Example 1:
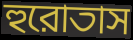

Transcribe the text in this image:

হুরোতাস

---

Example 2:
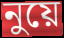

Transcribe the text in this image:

নুয়ে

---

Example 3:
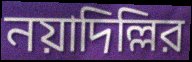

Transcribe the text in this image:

নয়াদিল্লির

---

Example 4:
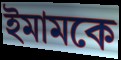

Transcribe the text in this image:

ইমামকে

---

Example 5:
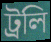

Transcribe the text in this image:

ট্রলি